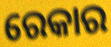
ରେକାର